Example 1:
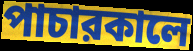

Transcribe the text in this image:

পাচারকালে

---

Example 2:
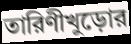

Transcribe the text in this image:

তারিণীখুড়োর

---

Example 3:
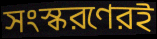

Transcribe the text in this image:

সংস্করণেরই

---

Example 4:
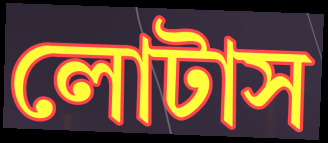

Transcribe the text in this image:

লোটাস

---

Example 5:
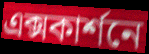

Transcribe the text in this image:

এক্সকার্শনে